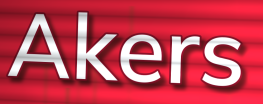
Akers